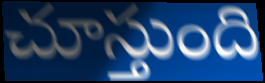
చూస్తుంది